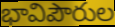
భావిపౌరుల